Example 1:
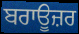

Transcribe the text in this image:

ਬਰਾਊਜ਼ਰ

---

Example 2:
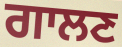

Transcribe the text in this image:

ਗਾਲਣ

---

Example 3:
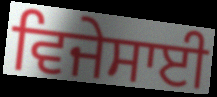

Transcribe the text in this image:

ਵਿਜੇਸਾਈ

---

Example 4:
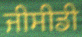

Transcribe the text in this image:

ਜੀਸੀਡੀ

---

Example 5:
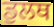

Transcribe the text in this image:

ਡੁਲਥ